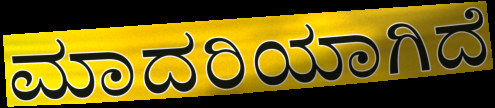
ಮಾದರಿಯಾಗಿದೆ